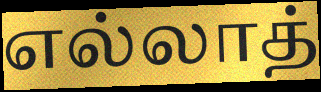
எல்லாத்